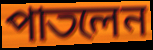
পাতলেন